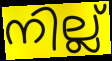
നില്ല്